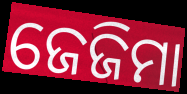
ଜେଜିମା